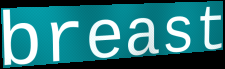
breast